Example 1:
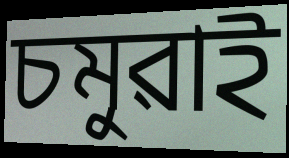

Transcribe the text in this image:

চমুৱাই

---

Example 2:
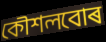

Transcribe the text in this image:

কৌশলবোৰ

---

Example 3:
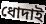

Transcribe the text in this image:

ধোদাই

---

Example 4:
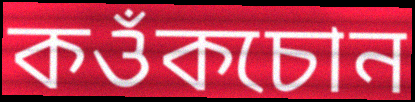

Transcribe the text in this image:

কওঁকচোন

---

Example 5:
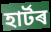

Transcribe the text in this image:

হাৰ্টৰ